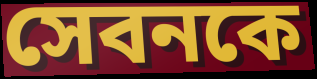
সেবনকে